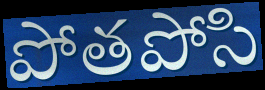
పోతపోసి